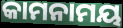
କାମନାମୟ